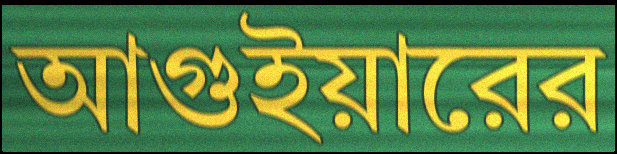
আগুইয়ারের